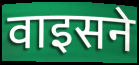
वाइसने